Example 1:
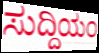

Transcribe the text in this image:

ಸುದ್ದಿಯಂ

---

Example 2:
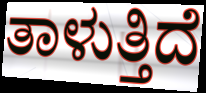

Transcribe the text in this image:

ತಾಳುತ್ತಿದೆ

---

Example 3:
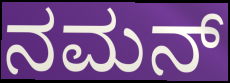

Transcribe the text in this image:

ನಮನ್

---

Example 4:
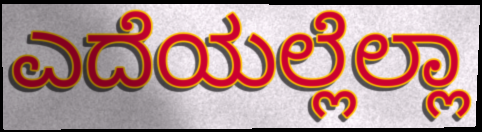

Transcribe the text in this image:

ಎದೆಯಲ್ಲೆಲ್ಲಾ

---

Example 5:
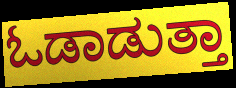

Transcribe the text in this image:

ಓಡಾಡುತ್ತಾ